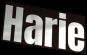
Harie